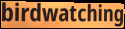
birdwatching